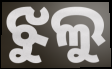
ଝୁଲୁ